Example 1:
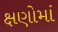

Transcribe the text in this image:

ક્ષણોમાં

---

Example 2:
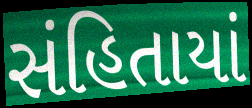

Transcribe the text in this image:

સંહિતાયાં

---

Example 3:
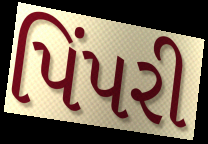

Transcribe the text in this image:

પિંપરી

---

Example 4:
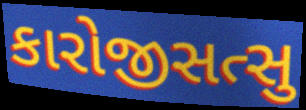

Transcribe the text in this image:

કારોજીસત્સુ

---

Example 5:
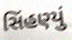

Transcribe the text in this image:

સિંહણ્યું